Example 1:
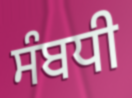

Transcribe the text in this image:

ਸੰਬਧੀ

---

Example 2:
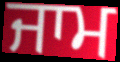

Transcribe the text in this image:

ਜਾਮ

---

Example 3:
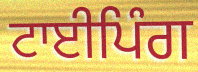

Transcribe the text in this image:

ਟਾਈਪਿੰਗ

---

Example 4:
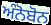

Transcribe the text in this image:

ਅੰਨੋਬੋਨ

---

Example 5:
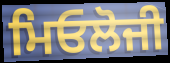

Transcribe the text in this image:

ਮਿਓਲੋਜੀ